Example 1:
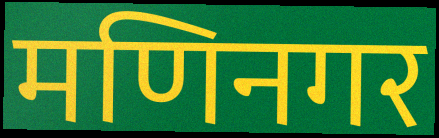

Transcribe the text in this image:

मणिनगर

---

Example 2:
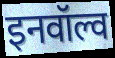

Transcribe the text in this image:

इनवॉल्व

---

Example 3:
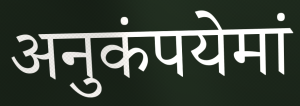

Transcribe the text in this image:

अनुकंपयेमां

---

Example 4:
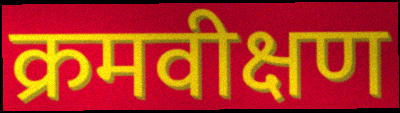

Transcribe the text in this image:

क्रमवीक्षण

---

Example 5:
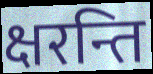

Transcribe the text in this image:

क्षरन्ति